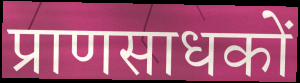
प्राणसाधकों